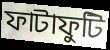
ফাটাফুটি